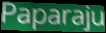
Paparaju